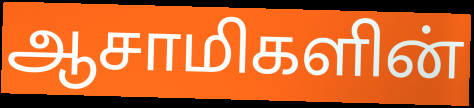
ஆசாமிகளின்